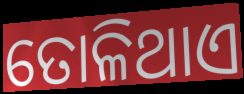
ତୋଳିଥାଏ